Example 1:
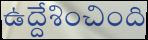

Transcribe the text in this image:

ఉద్దేశించింది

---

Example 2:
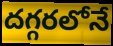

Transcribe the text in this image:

దగ్గరలోనే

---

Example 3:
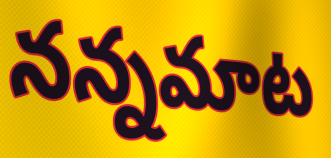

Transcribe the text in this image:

నన్నమాట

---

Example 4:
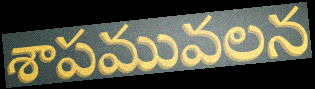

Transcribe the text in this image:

శాపమువలన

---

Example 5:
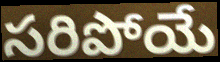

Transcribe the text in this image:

సరిపోయే